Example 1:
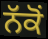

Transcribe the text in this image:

ਨੱਕੋਂ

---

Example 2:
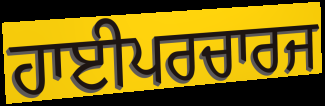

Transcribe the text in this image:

ਹਾਈਪਰਚਾਰਜ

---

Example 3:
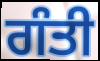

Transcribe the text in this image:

ਗੰਤੀ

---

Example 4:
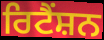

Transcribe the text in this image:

ਰਿਟੈਂਸ਼ਨ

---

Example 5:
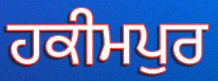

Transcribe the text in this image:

ਹਕੀਮਪੁਰ